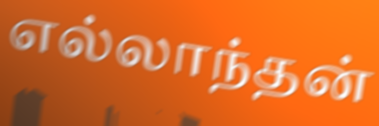
எல்லாந்தன்